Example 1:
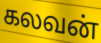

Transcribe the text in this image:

கலவன்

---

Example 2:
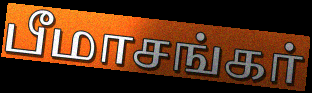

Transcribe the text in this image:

பீமாசங்கர்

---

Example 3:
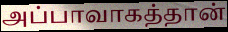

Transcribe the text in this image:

அப்பாவாகத்தான்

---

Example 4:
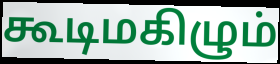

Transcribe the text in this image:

கூடிமகிழும்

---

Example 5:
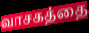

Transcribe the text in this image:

வாசகத்தை